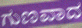
ಗುಣವಾದ